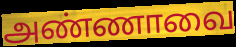
அண்ணாவை